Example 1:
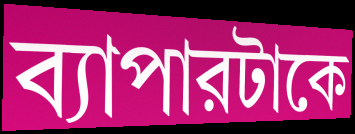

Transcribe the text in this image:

ব্যাপারটাকে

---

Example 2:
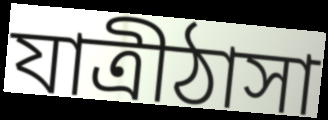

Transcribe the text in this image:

যাত্রীঠাসা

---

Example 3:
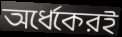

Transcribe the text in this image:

অর্ধেকেরই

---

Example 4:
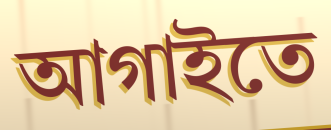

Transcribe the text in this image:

আগাইতে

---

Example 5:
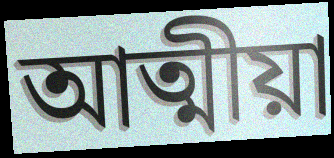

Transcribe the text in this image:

আত্মীয়া